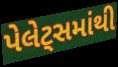
પેલેટ્સમાંથી